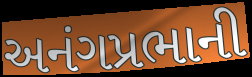
અનંગપ્રભાની